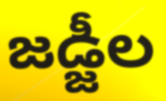
జడ్జీల